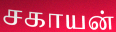
சகாயன்